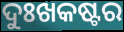
ଦୁଃଖକଷ୍ଟର